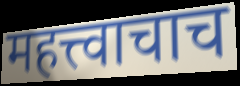
महत्त्वाचाच